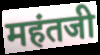
महंतजी